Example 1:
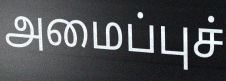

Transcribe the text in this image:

அமைப்புச்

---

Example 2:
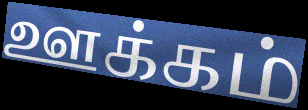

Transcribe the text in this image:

ஊக்கம்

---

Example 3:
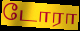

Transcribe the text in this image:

டோரா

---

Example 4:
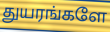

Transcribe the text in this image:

துயரங்களே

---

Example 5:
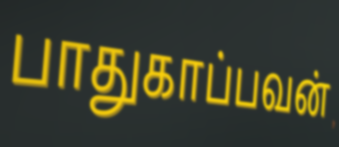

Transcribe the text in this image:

பாதுகாப்பவன்